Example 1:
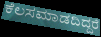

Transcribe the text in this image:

ಕೆಲಸಮಾಡದಿದ್ದರೆ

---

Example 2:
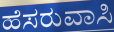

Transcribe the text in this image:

ಹೆಸರುವಾಸಿ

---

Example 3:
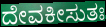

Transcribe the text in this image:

ದೇವಕೀಸುತಃ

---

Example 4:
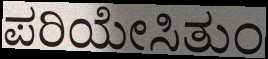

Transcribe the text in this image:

ಪರಿಯೇಸಿತುಂ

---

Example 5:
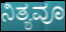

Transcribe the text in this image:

ನಿತ್ಯವೂ